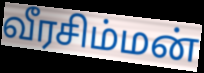
வீரசிம்மன்